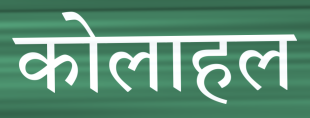
कोलाहल